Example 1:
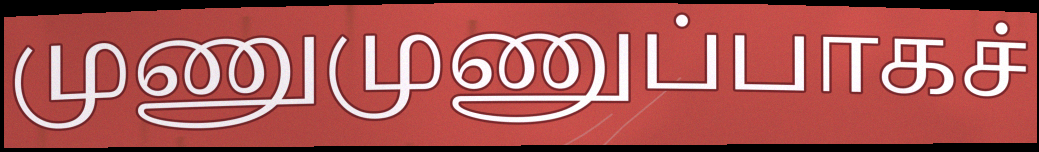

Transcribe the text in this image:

முணுமுணுப்பாகச்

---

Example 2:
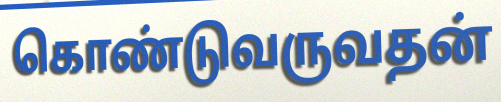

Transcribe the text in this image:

கொண்டுவருவதன்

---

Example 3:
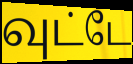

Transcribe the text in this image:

வுட்டே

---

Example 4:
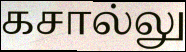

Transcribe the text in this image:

கசால்லு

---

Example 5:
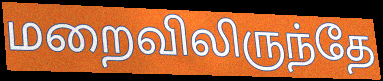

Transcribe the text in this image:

மறைவிலிருந்தே